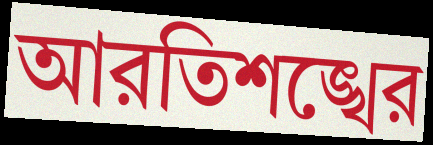
আরতিশঙ্খের